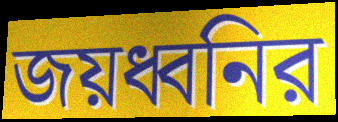
জয়ধ্বনির